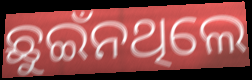
ଛୁଇଁନଥିଲେ